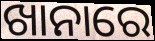
ଖାନାରେ